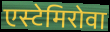
एस्टेमिरोवा